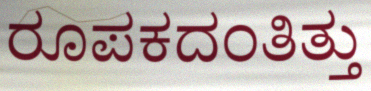
ರೂಪಕದಂತಿತ್ತು